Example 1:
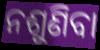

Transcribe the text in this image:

ନଶୁଣିବା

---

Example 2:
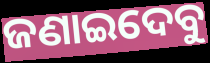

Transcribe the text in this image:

ଜଣାଇଦେବୁ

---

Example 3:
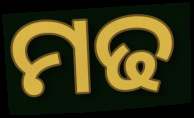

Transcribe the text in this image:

ମଢ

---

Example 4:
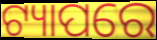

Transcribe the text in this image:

ଟ୍ୟାପରେ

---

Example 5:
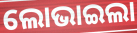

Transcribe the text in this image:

ଲୋଭାଇଲା